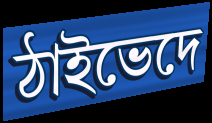
ঠাইভেদে